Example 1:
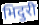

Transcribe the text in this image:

भिदुरी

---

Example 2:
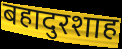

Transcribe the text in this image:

बहादुरशाह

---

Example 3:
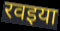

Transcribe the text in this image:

रवइया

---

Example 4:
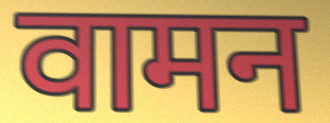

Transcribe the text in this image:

वामन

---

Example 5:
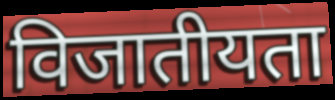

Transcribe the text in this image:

विजातीयता